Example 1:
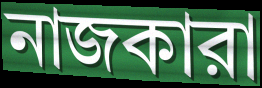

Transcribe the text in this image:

নাজকারা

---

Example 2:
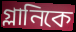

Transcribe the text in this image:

গ্লানিকে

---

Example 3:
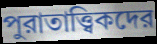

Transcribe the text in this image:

পুরাতাত্ত্বিকদের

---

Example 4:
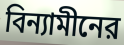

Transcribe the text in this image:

বিন্যামীনের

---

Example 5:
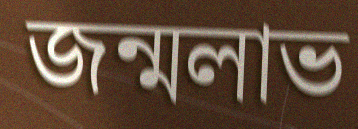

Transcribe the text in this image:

জন্মলাভ